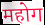
महोग